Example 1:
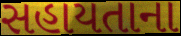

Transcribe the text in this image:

સહાયતાના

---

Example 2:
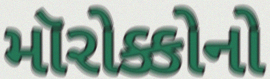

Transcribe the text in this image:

મૉરોક્કોનો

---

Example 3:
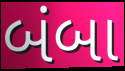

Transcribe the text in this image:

બંબા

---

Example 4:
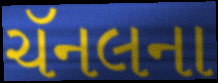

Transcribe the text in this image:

ચૅનલના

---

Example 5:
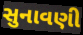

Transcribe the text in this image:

સુનાવણી